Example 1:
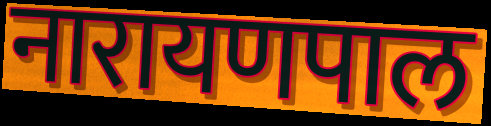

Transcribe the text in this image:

नारायणपाल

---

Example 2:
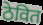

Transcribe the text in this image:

ठेवित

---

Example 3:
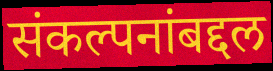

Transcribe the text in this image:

संकल्पनांबद्दल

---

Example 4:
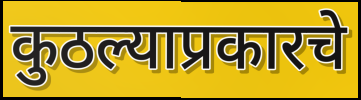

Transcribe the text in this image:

कुठल्याप्रकारचे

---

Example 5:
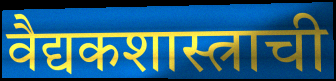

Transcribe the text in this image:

वैद्यकशास्त्राची